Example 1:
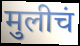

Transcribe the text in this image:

मुलीचं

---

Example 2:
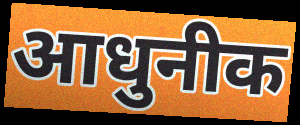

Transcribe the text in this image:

आधुनीक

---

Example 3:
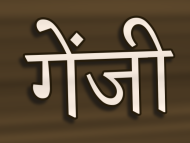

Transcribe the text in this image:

गेंजी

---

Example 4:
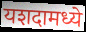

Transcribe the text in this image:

यशदामध्ये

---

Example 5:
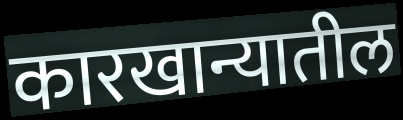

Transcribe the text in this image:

कारखान्यातील